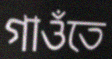
গাওঁতে